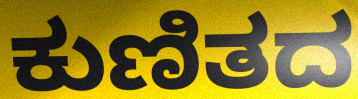
ಕುಣಿತದ